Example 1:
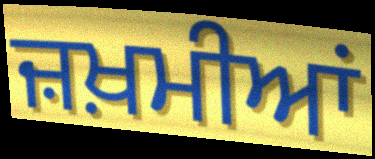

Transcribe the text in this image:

ਜ਼ਖ਼ਮੀਆਂ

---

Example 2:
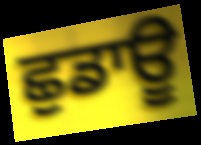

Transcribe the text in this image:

ਛੁਡਾਊ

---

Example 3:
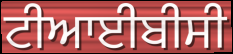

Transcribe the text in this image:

ਟੀਆਈਬੀਸੀ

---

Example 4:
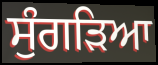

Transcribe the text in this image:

ਸੁੰਗੜਿਆ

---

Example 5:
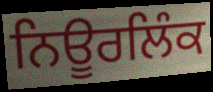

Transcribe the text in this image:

ਨਿਊਰਲਿੰਕ